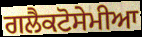
ਗਲੈਕਟੋਸੇਮੀਆ